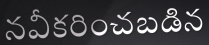
నవీకరించబడిన